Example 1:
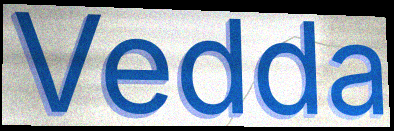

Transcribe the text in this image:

Vedda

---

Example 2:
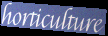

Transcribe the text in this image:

horticulture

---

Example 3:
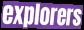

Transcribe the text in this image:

explorers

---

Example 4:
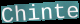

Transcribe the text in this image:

Chinte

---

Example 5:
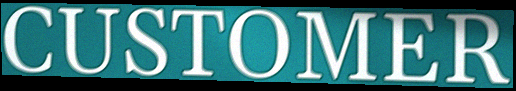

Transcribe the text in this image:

CUSTOMER